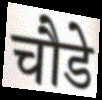
चौडे